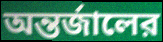
অন্তর্জালের